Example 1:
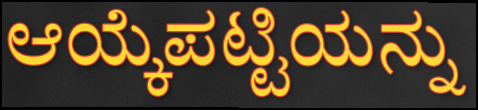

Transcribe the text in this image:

ಆಯ್ಕೆಪಟ್ಟಿಯನ್ನು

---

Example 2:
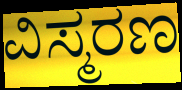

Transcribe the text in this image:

ವಿಸ್ಮರಣ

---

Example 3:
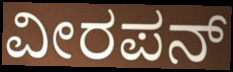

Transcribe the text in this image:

ವೀರಪನ್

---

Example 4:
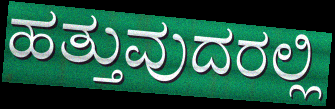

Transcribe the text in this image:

ಹತ್ತುವುದರಲ್ಲಿ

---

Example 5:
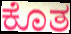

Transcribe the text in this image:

ಕೊತ